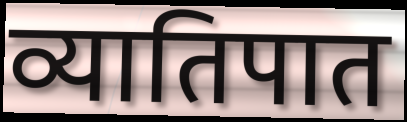
व्यातिपात